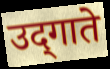
उद्‌गाते